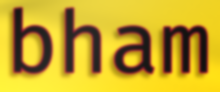
bham